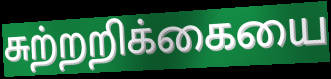
சுற்றறிக்கையை